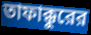
তাফাক্কুরের